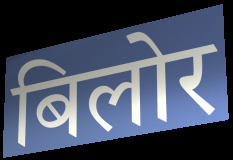
बिलोर